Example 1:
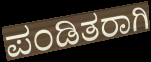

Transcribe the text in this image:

ಪಂಡಿತರಾಗಿ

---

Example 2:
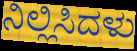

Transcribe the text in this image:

ನಿಲ್ಲಿಸಿದಳು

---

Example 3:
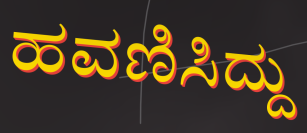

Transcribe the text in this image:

ಹವಣಿಸಿದ್ದು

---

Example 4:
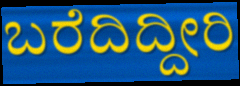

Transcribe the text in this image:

ಬರೆದಿದ್ದೀರಿ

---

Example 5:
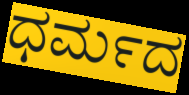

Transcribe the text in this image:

ಧರ್ಮದ